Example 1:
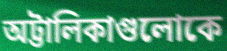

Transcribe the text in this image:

অট্টালিকাগুলোকে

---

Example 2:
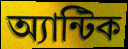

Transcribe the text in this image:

অ্যান্টিক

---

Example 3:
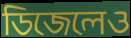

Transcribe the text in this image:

ডিজেলেও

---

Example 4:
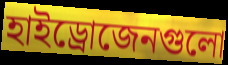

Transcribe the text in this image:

হাইড্রোজেনগুলো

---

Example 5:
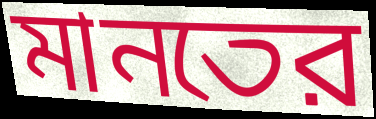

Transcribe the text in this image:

মানতের